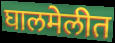
घालमेलीत